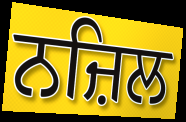
ਨਜ਼ਿਲ